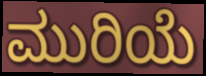
ಮುರಿಯೆ